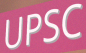
UPSC